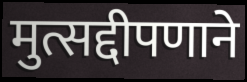
मुत्सद्दीपणाने